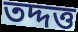
তদ্দত্ত